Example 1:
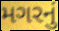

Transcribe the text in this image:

મગરનું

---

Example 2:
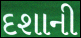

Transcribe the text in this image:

દશાની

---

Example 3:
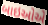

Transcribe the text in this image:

બાઇઓએ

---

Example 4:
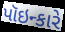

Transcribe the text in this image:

પૉઇન્કારે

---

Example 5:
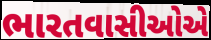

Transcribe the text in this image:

ભારતવાસીઓએ